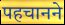
पहचानने